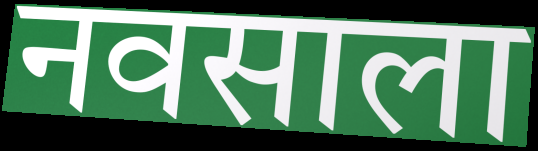
नवसाला